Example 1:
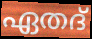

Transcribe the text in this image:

ഏതദ്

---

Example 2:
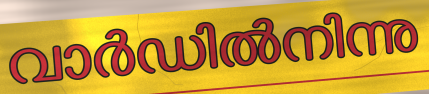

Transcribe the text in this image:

വാർഡിൽനിന്നു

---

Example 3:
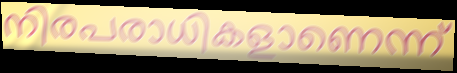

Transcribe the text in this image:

നിരപരാധികളാണെന്ന്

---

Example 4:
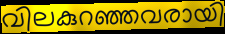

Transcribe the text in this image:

വിലകുറഞ്ഞവരായി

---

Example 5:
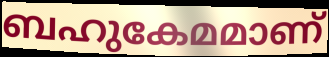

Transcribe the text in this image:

ബഹുകേമമാണ്